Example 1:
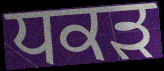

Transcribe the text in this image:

ਧਕੜ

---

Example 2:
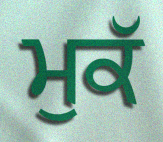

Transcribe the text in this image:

ਮੁਕੱ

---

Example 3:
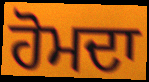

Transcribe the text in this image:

ਹੋਮਦਾ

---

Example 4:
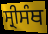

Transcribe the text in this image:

ਸ੍ਰੀਸੰਥ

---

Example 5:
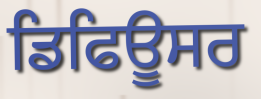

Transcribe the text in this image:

ਡਿਫਿਊਸਰ